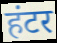
हंटर